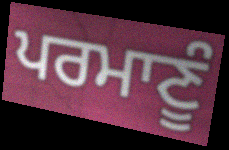
ਪਰਮਾਣੂੰ